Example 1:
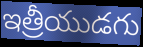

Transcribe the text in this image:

ఇత్రీయుడగు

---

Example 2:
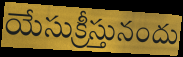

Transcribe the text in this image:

యేసుక్రీస్తునందు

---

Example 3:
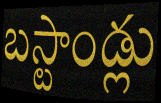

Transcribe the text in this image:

బస్టాండ్లు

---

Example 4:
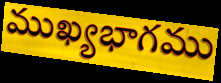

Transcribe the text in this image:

ముఖ్యభాగము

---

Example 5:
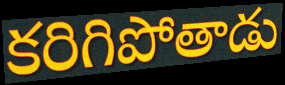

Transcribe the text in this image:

కరిగిపోతాడు